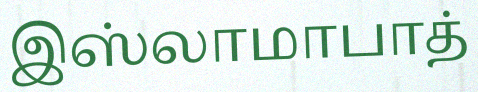
இஸ்லாமாபாத்